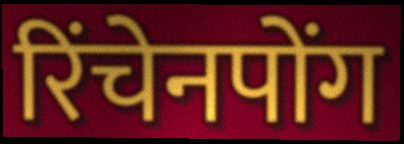
रिंचेनपोंग